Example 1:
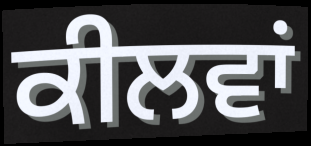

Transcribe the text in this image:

ਕੀਲਵਾਂ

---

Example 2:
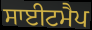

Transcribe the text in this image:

ਸਾਈਟਮੈਪ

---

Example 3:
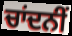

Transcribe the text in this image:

ਚਾਂਦਨੀਂ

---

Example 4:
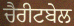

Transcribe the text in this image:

ਚੈਰੀਟਬੇਲ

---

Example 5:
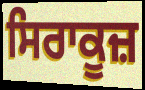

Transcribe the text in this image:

ਸਿਰਾਕੂਜ਼